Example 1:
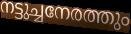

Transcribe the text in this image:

നട്ടുച്ചനേരത്തും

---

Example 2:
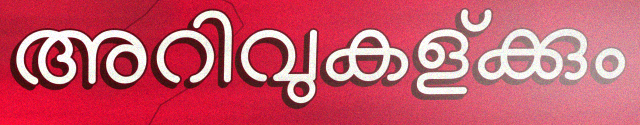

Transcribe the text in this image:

അറിവുകള്ക്കും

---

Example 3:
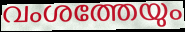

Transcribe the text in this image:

വംശത്തേയും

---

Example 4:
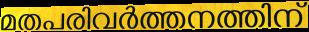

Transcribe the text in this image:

മതപരിവർത്തനത്തിന്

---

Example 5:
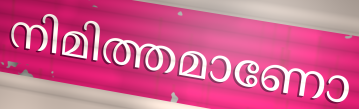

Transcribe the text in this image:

നിമിത്തമാണോ